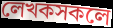
লেখকসকলে